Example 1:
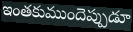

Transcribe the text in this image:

ఇంతకుముందెప్పుడూ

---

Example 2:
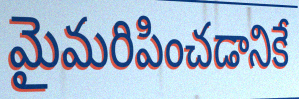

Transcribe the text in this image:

మైమరిపించడానికే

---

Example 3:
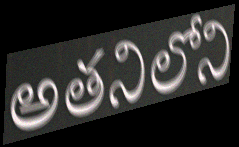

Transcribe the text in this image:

అతనిలోని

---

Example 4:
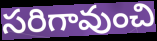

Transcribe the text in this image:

సరిగావుంచి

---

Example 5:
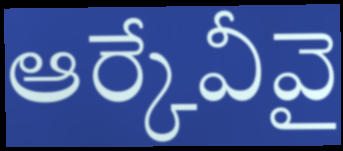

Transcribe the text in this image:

ఆర్కేవీవై